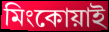
মিংকোয়াই